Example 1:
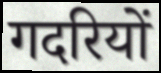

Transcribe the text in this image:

गदरियों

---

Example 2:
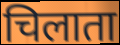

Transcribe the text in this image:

चिलाता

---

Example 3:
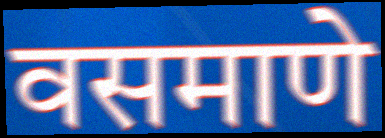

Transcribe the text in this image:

वसमाणे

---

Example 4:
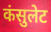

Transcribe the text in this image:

कंसुलेट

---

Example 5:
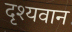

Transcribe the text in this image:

दृश्यवान